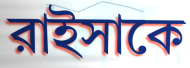
রাইসাকে